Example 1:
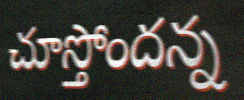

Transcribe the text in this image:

చూస్తోందన్న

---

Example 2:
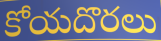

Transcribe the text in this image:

కోయదొరలు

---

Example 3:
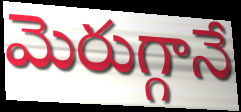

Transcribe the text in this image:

మెరుగ్గానే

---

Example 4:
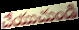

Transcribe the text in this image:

చేయుచుండి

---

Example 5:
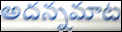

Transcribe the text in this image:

అదన్నమాట